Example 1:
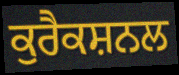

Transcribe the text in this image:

ਕੁਰੈਕਸ਼ਨਲ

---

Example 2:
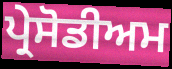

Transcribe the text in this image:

ਪ੍ਰੇਸੋਡੀਅਮ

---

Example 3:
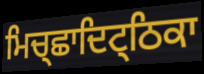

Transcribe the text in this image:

ਮਿਚ੍ਛਾਦਿਟ੍ਠਿਕਾ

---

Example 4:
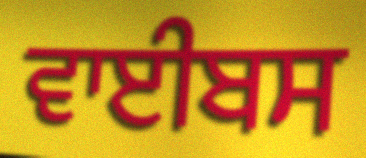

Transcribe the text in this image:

ਵਾਈਬਸ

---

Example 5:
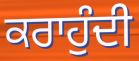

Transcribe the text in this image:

ਕਰਾਹੁੰਦੀ